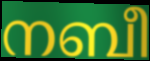
നബീ